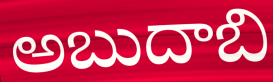
అబుదాబి